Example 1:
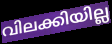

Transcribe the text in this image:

വിലക്കിയില്ല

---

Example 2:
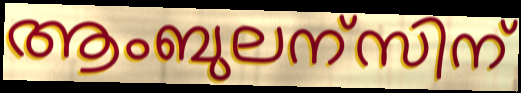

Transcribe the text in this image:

ആംബുലന്സിന്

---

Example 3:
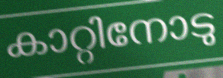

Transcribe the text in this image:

കാറ്റിനോടു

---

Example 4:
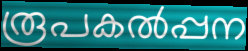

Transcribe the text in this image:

രൂപകൽപ്പന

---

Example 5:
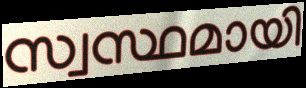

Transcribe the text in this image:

സ്വസ്ഥമായി